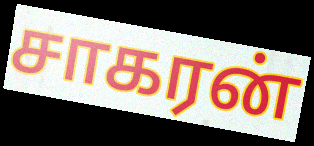
சாகரன்